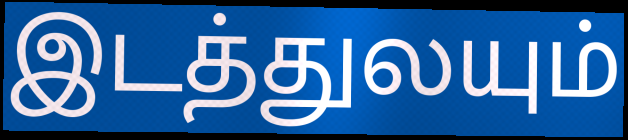
இடத்துலயும்